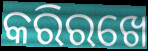
କରିରଖେ